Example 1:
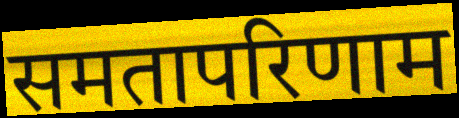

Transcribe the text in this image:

समतापरिणाम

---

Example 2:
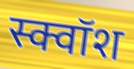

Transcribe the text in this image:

स्क्वॉश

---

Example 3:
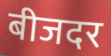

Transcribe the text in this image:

बीजदर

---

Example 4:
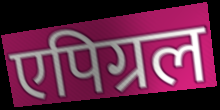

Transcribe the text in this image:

एपिग्रल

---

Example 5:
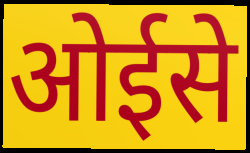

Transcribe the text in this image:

ओईसे